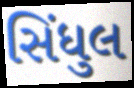
સિંધુલ